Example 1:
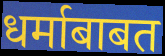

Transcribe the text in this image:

धर्माबाबत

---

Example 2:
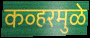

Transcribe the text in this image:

कव्हरमुळे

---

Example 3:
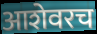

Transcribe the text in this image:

आशेवरच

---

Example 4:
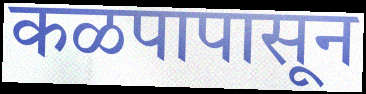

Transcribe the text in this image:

कळपापासून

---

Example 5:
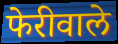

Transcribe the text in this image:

फेरीवाले